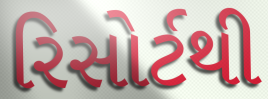
રિસોર્ટથી